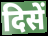
दिसें